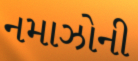
નમાઝોની